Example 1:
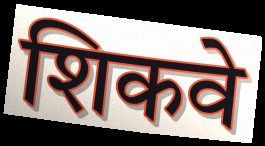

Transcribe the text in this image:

शिकवे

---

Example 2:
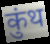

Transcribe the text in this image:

कुंथ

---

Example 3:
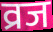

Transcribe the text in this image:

व्रज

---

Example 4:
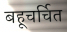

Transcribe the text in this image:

बहूचर्चित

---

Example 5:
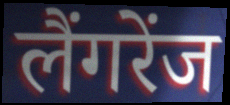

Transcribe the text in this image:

लैंगरेंज